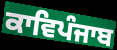
ਕਾਵਿਪੰਜਾਬ